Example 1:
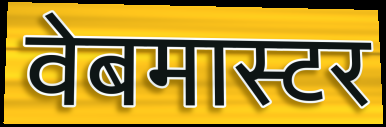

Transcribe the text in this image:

वेबमास्टर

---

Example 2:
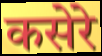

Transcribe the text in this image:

कसेरे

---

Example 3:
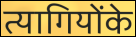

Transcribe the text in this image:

त्यागियोंके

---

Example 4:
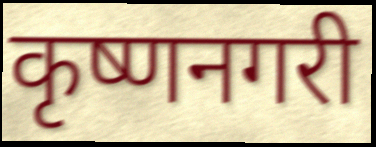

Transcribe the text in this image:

कृष्णनगरी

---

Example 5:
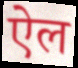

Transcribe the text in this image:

ऐल